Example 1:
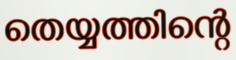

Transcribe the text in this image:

തെയ്യത്തിന്റെ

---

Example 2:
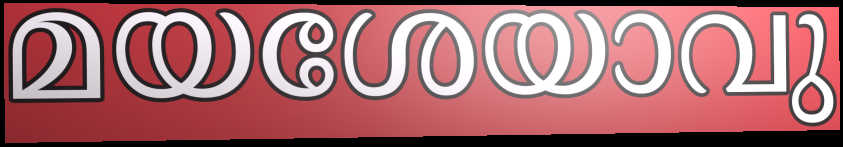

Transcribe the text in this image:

മയശേയാവു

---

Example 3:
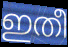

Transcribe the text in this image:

ഇതീ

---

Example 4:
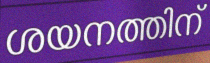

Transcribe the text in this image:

ശയനത്തിന്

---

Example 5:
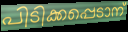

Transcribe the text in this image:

പിടിക്കപ്പെടാന്